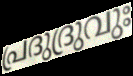
പ്രദുദ്രുവുഃ